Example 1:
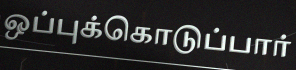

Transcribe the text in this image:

ஒப்புக்கொடுப்பார்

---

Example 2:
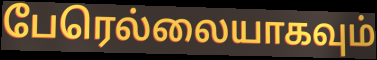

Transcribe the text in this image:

பேரெல்லையாகவும்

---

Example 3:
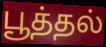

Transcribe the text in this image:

பூத்தல்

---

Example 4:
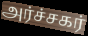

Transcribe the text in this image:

அர்ச்சகர்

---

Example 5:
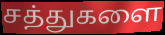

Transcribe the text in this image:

சத்துகளை